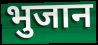
भुजान